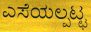
ಎಸೆಯಲ್ಪಟ್ಟ